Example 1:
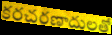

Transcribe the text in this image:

కరచరణాదులతో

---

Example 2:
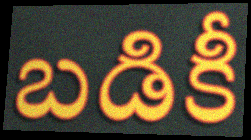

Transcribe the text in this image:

బడికీ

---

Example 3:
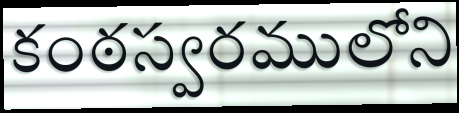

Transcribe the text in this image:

కంఠస్వరములోని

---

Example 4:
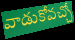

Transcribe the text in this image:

వాడుకోవచ్చో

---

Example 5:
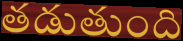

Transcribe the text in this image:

తడుతుంది